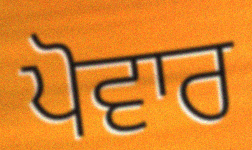
ਪੋਵਾਰ